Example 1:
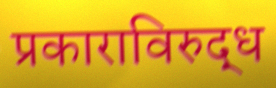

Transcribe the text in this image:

प्रकाराविरुद्ध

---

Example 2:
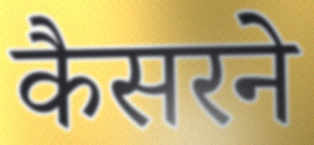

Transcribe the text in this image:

कैसरने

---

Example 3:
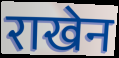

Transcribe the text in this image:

राखेन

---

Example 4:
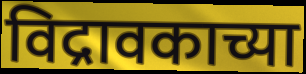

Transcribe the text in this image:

विद्रावकाच्या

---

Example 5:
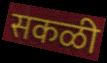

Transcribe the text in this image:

सकळी